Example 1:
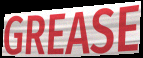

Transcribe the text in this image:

GREASE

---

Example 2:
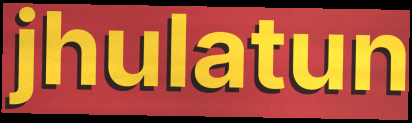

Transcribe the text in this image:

jhulatun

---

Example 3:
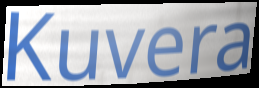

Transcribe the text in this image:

Kuvera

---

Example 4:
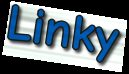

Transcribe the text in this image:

Linky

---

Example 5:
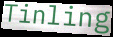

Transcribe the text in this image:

Tinling